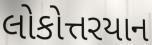
લોકોત્તરયાન